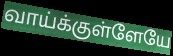
வாய்க்குள்ளேயே